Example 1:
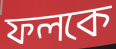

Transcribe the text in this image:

ফলকে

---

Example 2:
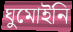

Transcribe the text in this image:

ঘুমোইনি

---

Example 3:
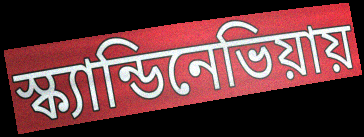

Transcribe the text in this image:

স্ক্যান্ডিনেভিয়ায়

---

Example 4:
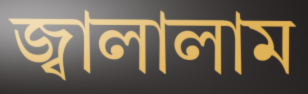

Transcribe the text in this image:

জ্বালালাম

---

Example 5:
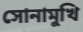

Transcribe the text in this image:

সোনামুখি